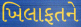
ખિલાફતને